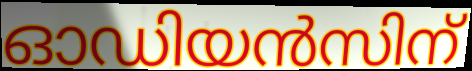
ഓഡിയൻസിന്